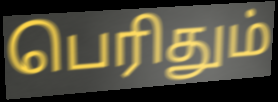
பெரிதும்